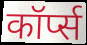
कॉर्प्स